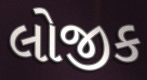
લોજીક